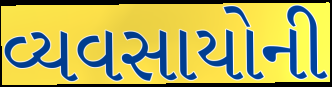
વ્યવસાયોની